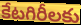
కేటగిరీలకు